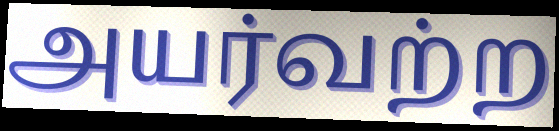
அயர்வற்ற